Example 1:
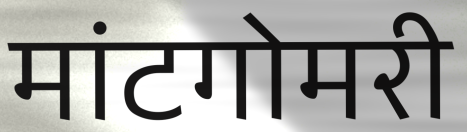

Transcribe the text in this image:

मांटगोमरी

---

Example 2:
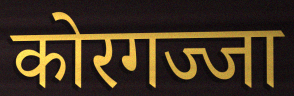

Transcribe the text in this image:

कोरगज्जा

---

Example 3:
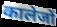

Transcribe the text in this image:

कालेजों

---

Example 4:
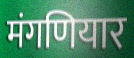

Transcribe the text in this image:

मंगणियार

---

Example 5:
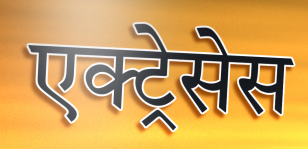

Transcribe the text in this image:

एक्ट्रेसेस